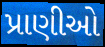
પ્રાણીઓ